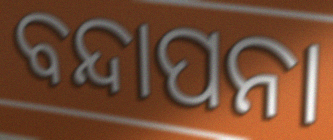
ବନ୍ଦାପନା